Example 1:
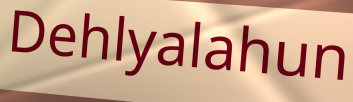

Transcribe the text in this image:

Dehlyalahun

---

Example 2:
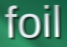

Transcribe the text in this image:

foil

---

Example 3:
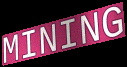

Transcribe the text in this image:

MINING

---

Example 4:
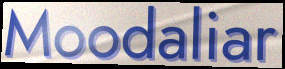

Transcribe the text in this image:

Moodaliar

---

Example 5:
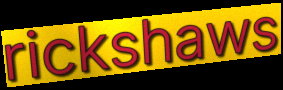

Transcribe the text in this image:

rickshaws